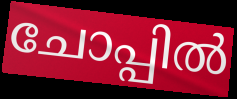
ചോപ്പിൽ